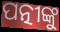
ପତ୍ନୀଙ୍କୁ